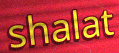
shalat